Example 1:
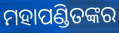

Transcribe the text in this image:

ମହାପଣ୍ଡିତଙ୍କର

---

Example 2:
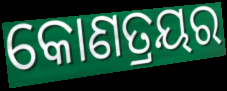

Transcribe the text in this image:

କୋଣତ୍ରୟର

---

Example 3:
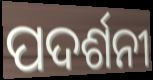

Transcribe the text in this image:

ପଦର୍ଶନୀ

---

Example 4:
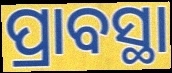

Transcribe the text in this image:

ପ୍ରାବସ୍ଥା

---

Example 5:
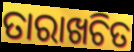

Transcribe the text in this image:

ତାରାଖଚିତ